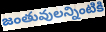
జంతువులన్నింటికి